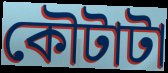
কৌটাটা